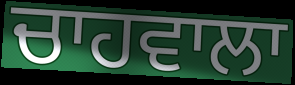
ਚਾਹਵਾਲਾ